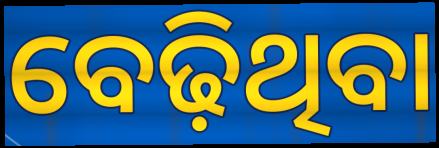
ବେଢ଼ିଥିବା